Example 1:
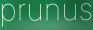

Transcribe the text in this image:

prunus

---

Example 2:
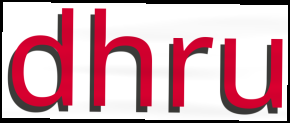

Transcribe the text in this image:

dhru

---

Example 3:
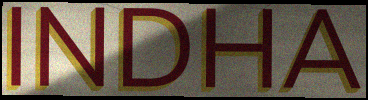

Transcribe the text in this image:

INDHA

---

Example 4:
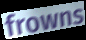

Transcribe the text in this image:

frowns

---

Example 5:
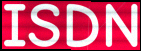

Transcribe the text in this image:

ISDN